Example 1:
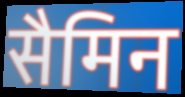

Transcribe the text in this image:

सैमिन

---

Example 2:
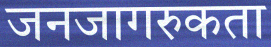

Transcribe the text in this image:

जनजागरुकता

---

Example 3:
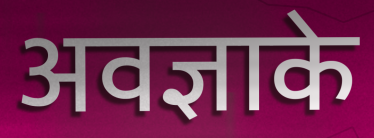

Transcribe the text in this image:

अवज्ञाके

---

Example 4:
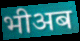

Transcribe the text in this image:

भीअब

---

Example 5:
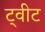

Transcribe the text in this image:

ट्वीट